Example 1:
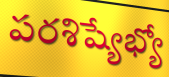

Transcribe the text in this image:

పరశిష్యేభ్యో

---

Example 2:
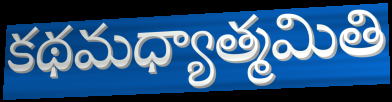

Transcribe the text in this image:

కథమధ్యాత్మమితి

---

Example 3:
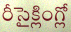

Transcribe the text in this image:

రీసైక్లింగ్లో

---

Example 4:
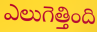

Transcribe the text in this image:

ఎలుగెత్తింది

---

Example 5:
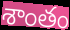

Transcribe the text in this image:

శాంతం